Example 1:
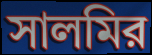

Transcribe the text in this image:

সালমির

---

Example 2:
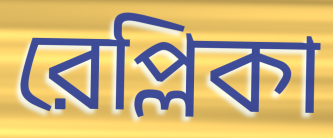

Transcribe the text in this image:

রেপ্লিকা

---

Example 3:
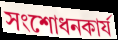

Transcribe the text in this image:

সংশোধনকার্য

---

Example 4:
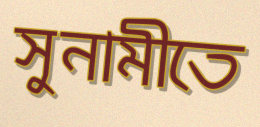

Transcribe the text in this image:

সুনামীতে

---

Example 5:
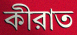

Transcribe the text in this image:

কীরাত